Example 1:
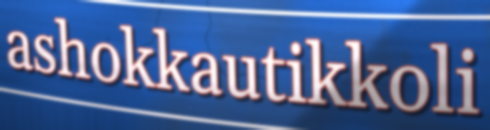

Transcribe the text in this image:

ashokkautikkoli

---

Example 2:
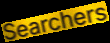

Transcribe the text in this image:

Searchers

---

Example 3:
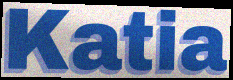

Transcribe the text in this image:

Katia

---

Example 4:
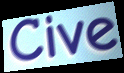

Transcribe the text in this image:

Cive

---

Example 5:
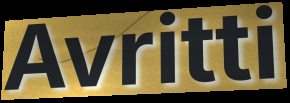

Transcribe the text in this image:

Avritti